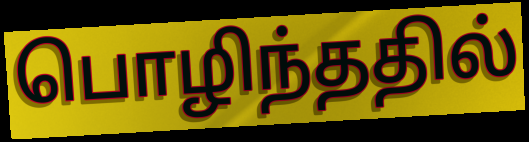
பொழிந்ததில்